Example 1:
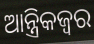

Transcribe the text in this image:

ଆନ୍ତ୍ରିକଜ୍ଵର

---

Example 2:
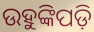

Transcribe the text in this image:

ଉହୁଙ୍କିପଡ଼ି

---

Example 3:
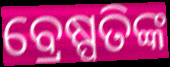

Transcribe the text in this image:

ବ୍ରେଷ୍ପତିଙ୍କ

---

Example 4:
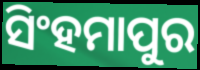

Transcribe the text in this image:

ସିଂହମାପୁର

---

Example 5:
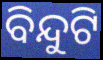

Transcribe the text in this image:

ବିନ୍ଦୁଟି